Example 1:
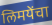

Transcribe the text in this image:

लिमयेंचा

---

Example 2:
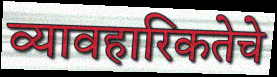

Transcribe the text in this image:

व्यावहारिकतेचे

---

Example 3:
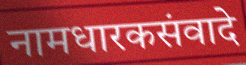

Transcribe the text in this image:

नामधारकसंवादे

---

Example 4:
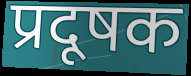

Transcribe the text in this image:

प्रदूषक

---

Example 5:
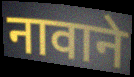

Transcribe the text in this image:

नावाने